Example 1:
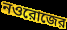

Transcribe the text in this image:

নওরোজের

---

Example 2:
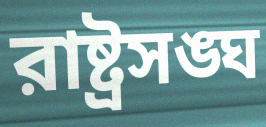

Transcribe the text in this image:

রাষ্ট্রসঙ্ঘ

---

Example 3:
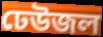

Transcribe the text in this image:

ঢেউজল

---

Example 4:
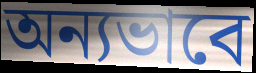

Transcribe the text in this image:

অন্যভাবে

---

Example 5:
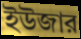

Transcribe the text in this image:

ইউজার